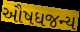
ઔષધજન્ય